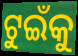
ଟୁଇଁକୁ